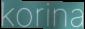
korina